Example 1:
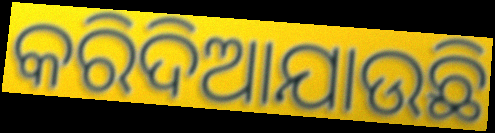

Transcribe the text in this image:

କରିଦିଆଯାଉଛି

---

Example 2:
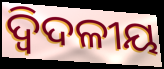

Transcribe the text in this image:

ଦ୍ବିଦଳୀୟ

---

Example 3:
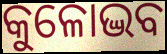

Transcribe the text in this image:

କୁଳୋଦ୍ଭବ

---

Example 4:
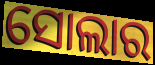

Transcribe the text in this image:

ସୋଲାର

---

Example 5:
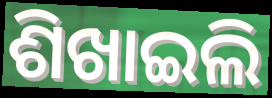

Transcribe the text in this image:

ଶିଖାଇଲି